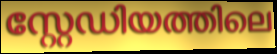
സ്റ്റേഡിയത്തിലെ